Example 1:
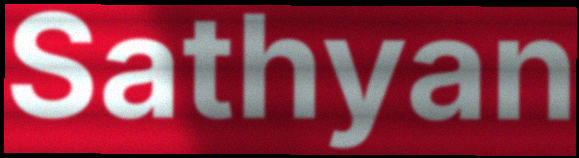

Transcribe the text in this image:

Sathyan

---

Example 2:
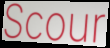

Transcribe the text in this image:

Scour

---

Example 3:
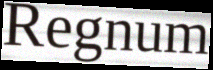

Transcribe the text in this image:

Regnum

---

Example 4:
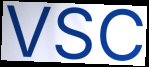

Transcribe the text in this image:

VSC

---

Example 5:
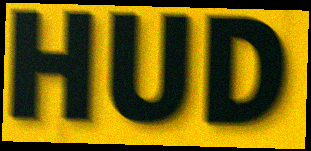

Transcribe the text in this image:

HUD